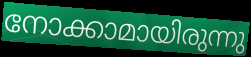
നോക്കാമായിരുന്നു